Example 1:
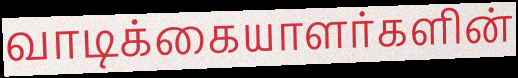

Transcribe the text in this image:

வாடிக்கையாளர்களின்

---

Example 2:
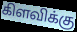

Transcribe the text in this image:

கிளவிக்கு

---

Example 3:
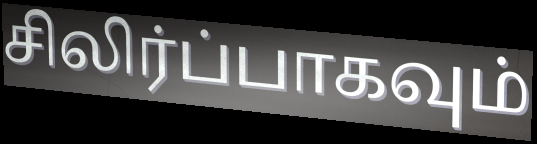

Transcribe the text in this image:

சிலிர்ப்பாகவும்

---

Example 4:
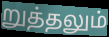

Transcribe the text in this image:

றுத்தலும்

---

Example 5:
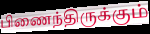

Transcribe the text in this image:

பிணைந்திருக்கும்